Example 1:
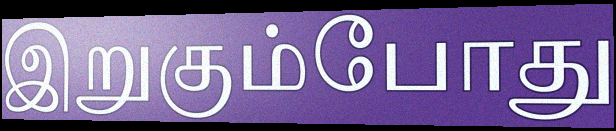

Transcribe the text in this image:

இறுகும்போது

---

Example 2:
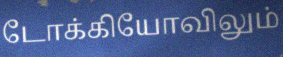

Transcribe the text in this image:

டோக்கியோவிலும்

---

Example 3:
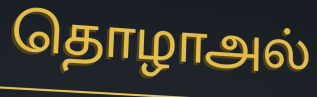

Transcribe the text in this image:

தொழாஅல்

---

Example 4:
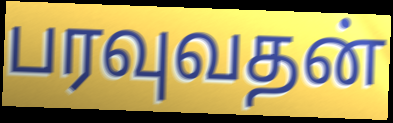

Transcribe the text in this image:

பரவுவதன்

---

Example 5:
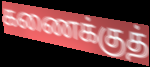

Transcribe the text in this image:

கணைக்குத்